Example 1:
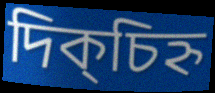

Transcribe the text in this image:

দিক্‌চিহ্ন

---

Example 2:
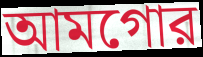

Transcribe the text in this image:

আমগোর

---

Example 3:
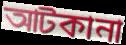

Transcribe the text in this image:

আটকানা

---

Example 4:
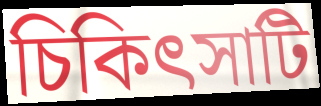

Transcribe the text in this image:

চিকিৎসাটি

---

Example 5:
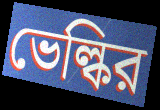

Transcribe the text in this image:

ভেল্কির